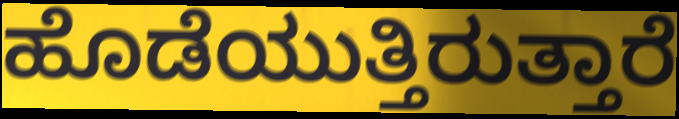
ಹೊಡೆಯುತ್ತಿರುತ್ತಾರೆ